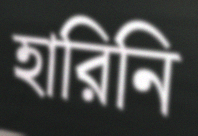
হারিনি